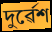
দুৰ্ৱেশ